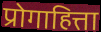
प्रोगाहित्ता